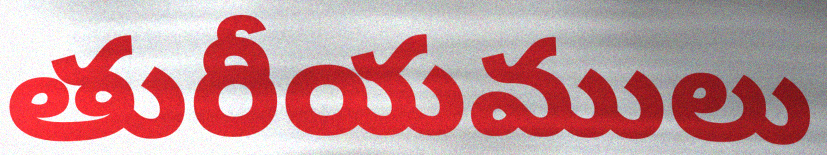
తురీయములు